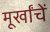
मूर्खांचें